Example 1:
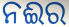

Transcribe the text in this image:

ନଈର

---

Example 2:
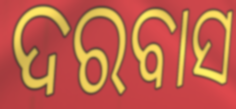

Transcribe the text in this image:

ଦରବାସ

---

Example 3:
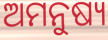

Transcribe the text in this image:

ଅମନୁଷ୍ୟ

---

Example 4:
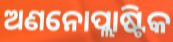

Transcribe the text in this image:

ଅଣନୋପ୍ଲାଷ୍ଟିକ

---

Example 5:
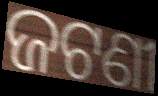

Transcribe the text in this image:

ଜଟଣୀ